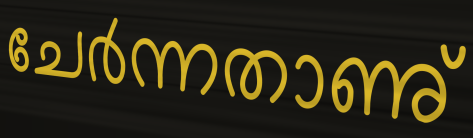
ചേർന്നതാണു്